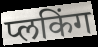
प्लकिंग